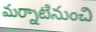
మర్నాటినుంచి